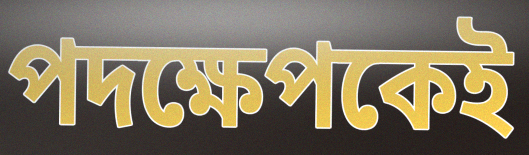
পদক্ষেপকেই